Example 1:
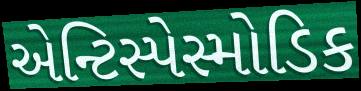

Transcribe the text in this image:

એન્ટિસ્પેસ્મોડિક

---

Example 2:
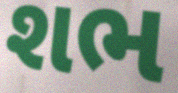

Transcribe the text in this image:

શભ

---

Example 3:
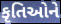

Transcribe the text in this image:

કૃતિઓને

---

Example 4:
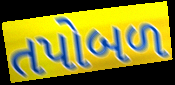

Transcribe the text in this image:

તપોબળ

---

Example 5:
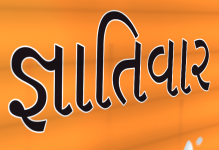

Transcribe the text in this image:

જ્ઞાતિવાર